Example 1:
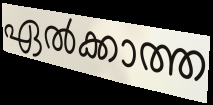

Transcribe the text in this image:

ഏൽക്കാത്ത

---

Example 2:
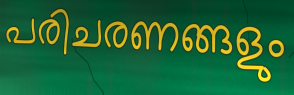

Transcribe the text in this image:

പരിചരണങ്ങളും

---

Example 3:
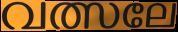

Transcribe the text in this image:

വത്സലേ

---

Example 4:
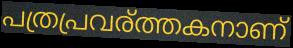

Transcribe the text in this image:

പത്രപ്രവര്ത്തകനാണ്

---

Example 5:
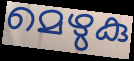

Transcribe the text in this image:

മെഴുകു